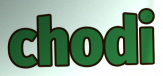
chodi